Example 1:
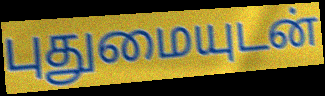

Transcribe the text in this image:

புதுமையுடன்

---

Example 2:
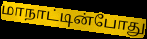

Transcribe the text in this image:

மாநாட்டின்போது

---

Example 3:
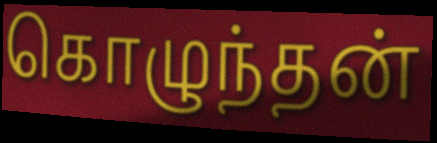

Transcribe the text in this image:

கொழுந்தன்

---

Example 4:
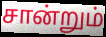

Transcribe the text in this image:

சான்றும்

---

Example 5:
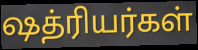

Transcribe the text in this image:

ஷத்ரியர்கள்